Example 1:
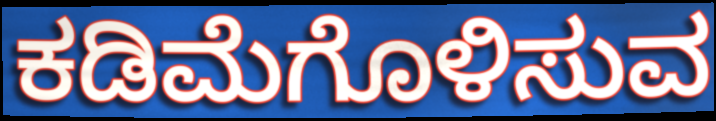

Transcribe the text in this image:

ಕಡಿಮೆಗೊಳಿಸುವ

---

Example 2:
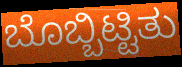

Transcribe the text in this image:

ಬೊಬ್ಬಿಟ್ಟಿತು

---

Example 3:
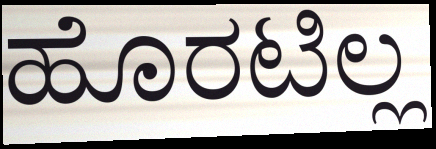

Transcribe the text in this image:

ಹೊರಟಿಲ್ಲ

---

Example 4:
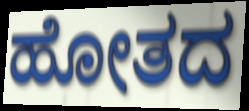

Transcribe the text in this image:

ಹೋತದ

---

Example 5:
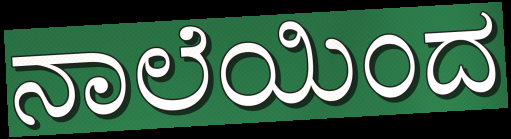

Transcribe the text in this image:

ನಾಲೆಯಿಂದ